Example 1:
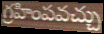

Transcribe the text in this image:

గ్రహింపవచ్చు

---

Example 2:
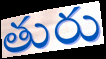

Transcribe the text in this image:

తురు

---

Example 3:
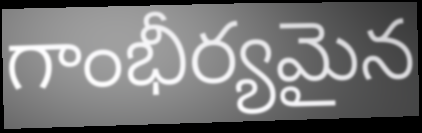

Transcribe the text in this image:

గాంభీర్యమైన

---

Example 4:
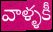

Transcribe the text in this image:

వాళ్ళకీ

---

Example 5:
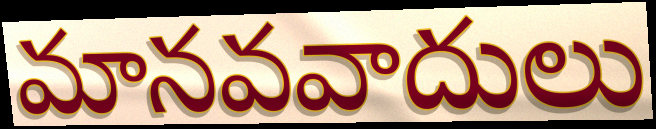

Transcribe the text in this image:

మానవవాదులు